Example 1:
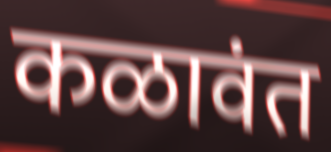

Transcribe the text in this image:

कळावंत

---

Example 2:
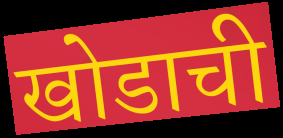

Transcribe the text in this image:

खोडाची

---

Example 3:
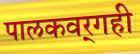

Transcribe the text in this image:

पालकवर्गही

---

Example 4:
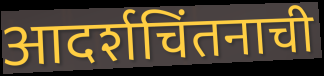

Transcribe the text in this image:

आदर्शचिंतनाची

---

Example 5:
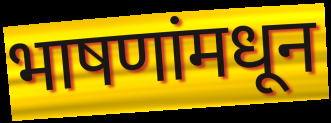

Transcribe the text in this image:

भाषणांमधून